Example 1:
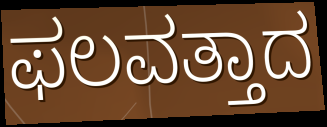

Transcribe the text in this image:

ಫಲವತ್ತಾದ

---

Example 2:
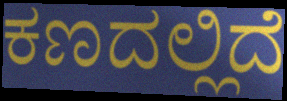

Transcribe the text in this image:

ಕಣದಲ್ಲಿದೆ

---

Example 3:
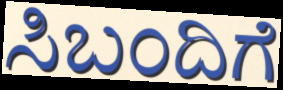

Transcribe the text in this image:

ಸಿಬಂದಿಗೆ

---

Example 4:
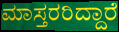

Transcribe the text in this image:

ಮಾಸ್ತರರಿದ್ದಾರೆ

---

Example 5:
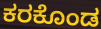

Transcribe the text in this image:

ಕರಕೊಂಡ